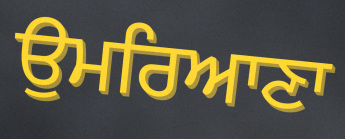
ਉਮਰਿਆਣਾ